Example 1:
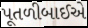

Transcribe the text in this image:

પૂતળીબાઈએ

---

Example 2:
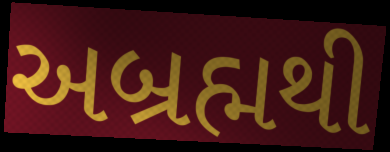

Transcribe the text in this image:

અબ્રહ્મથી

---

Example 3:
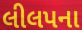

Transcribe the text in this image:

લીલપના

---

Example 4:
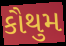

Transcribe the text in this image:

કૌથુમ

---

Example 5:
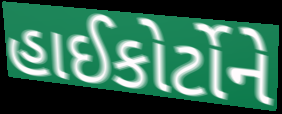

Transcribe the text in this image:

હાઈકોર્ટોને